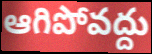
ఆగిపోవద్దు